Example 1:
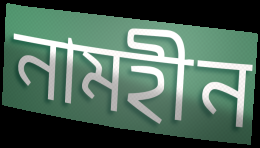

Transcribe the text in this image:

নামহীন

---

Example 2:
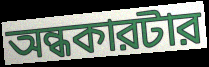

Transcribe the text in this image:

অন্ধকারটার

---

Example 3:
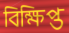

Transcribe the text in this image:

বিক্ষিপ্ত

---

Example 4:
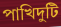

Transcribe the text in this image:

পাখিদুটি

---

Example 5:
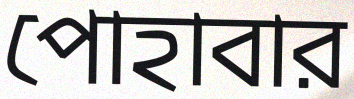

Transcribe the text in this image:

পোহাবার